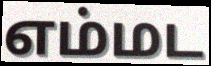
எம்மட